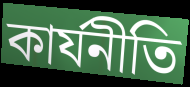
কার্যনীতি